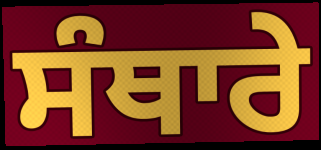
ਸੰਥਾਰੇ